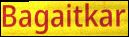
Bagaitkar